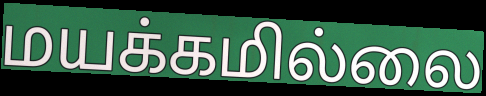
மயக்கமில்லை